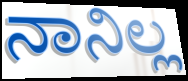
ನಾನಿಲ್ಲ